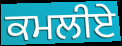
ਕਮਲੀਏ